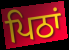
ਪਿਠਾਂ